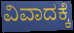
ವಿವಾದಕ್ಕೆ